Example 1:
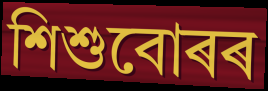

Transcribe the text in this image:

শিশুবোৰৰ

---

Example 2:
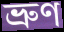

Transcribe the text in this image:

ভ্ৰুণ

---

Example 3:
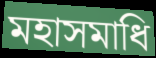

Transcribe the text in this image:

মহাসমাধি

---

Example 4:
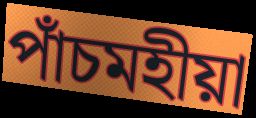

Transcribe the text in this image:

পাঁচমহীয়া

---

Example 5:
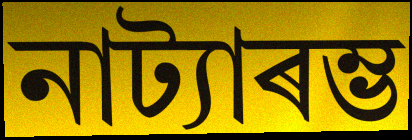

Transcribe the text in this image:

নাট্যাৰম্ভ